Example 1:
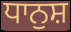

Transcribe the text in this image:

ਧਾਨੁਸ਼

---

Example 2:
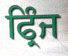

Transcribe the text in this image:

ਫ੍ਰਿੰਜ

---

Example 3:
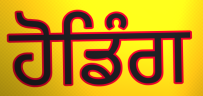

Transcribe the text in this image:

ਹੋਡਿੰਗ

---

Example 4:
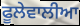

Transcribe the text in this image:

ਫੂਲੇਵਾਲੀਆ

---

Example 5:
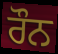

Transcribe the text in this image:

ਰੌਨ